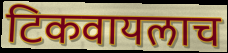
टिकवायलाच